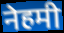
नेहमी